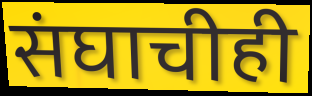
संघाचीही